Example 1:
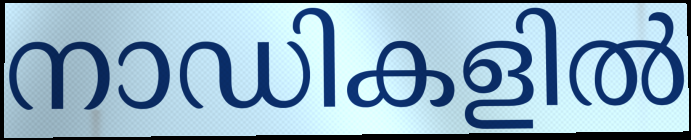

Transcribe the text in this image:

നാഡികളിൽ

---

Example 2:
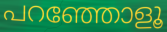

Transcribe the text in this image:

പറഞ്ഞോളൂ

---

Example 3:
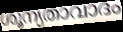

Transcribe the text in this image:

ശൂന്യതാവാദം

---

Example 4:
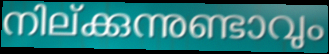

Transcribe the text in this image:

നില്ക്കുന്നുണ്ടാവും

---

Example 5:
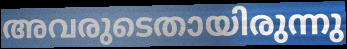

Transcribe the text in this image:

അവരുടെതായിരുന്നു